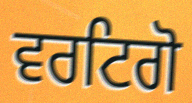
ਵਰਟਿਗੋ